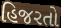
હિજરતો